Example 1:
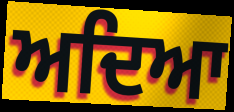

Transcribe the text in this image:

ਅਦਿਆ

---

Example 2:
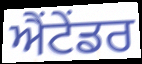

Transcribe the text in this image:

ਐਂਟੇਂਡਰ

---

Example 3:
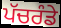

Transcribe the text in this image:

ਪੱਚਰੰਡੇ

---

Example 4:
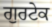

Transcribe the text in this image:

ਗੁਰਟੇਕ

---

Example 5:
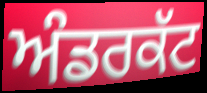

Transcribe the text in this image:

ਅੰਡਰਕੱਟ